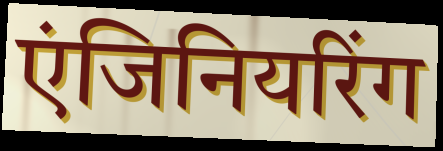
एंजिनियरिंग